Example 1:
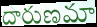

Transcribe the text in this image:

దారుణమా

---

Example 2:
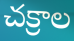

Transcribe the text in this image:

చక్రాల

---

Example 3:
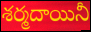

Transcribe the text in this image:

శర్మదాయినీ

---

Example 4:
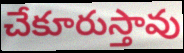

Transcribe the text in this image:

చేకూరుస్తావు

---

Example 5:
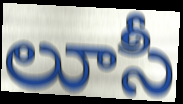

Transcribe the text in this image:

లూసీ